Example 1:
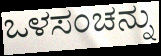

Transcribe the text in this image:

ಒಳಸಂಚನ್ನು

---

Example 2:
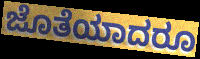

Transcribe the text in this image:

ಜೊತೆಯಾದರೂ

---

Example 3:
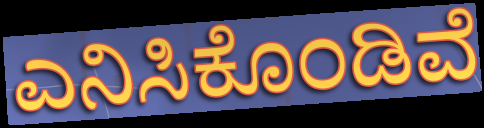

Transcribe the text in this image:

ಎನಿಸಿಕೊಂಡಿವೆ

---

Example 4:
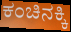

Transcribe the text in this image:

ಕಂಚಿನಕ್ಕಿ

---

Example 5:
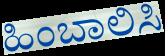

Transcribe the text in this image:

ಹಿಂಬಾಲಿಸಿ